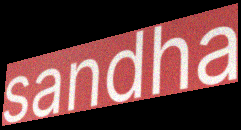
sandha